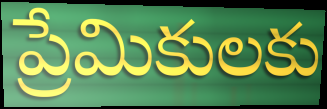
ప్రేమికులకు